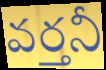
వర్తనీ